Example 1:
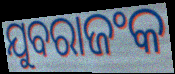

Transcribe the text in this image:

ଯୁବରାଜଂକ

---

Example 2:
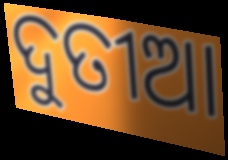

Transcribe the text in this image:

ଦୁତୀଆ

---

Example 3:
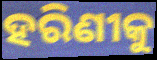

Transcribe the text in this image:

ହରିଣୀକୁ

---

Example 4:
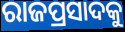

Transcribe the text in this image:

ରାଜପ୍ରସାଦକୁ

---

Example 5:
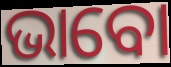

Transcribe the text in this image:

ଭାବୋ